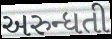
અરુન્ધતી